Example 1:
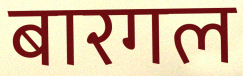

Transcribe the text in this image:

बारगल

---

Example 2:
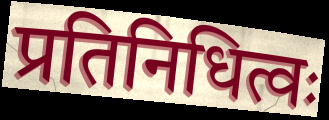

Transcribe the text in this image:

प्रतिनिधित्वः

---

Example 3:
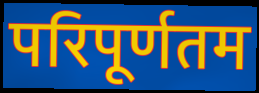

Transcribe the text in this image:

परिपूर्णतम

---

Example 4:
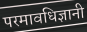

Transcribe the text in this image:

परमावधिज्ञानी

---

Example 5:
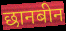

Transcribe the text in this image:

छानबीन